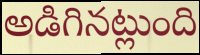
అడిగినట్లుంది